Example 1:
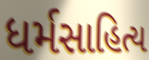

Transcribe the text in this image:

ધર્મસાહિત્ય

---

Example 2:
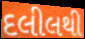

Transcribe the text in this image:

દલીલથી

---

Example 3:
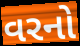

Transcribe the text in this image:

વરનો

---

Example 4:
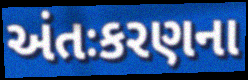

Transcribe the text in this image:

અંતઃકરણના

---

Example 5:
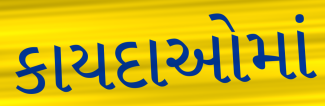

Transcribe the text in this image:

કાયદાઓમાં